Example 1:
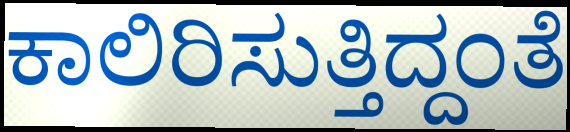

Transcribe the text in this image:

ಕಾಲಿರಿಸುತ್ತಿದ್ದಂತೆ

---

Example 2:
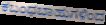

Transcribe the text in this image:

ಕಬಂಧಬಾಹುಗಳಿಂದ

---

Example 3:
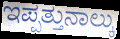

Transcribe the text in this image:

ಇಪ್ಪತ್ತುನಾಲ್ಕು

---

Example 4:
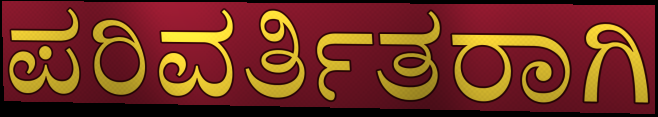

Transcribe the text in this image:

ಪರಿವರ್ತಿತರಾಗಿ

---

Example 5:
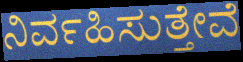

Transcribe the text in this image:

ನಿರ್ವಹಿಸುತ್ತೇವೆ